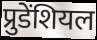
प्रुडेंशियल